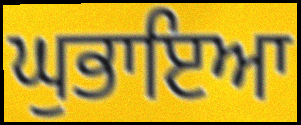
ਘੁਭਾਇਆ